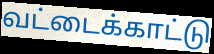
வட்டைக்காட்டு